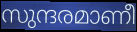
സുന്ദരമാണീ